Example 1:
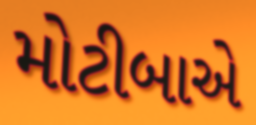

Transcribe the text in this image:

મોટીબાએ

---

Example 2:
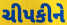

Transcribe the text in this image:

ચીપકીને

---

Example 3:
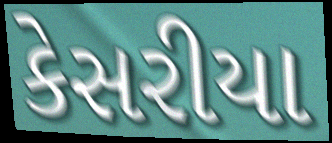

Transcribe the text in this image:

કેસરીયા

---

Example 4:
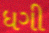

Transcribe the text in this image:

ધગી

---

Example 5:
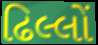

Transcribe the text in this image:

ઢિલ્લોં